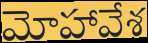
మోహావేశ